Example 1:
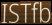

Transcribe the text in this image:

ISTfb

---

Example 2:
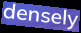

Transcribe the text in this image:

densely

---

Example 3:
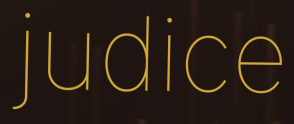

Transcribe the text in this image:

judice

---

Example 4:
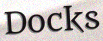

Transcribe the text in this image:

Docks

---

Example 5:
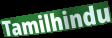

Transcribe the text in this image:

Tamilhindu